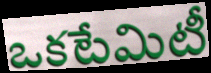
ఒకటేమిటీ